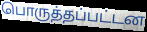
பொருத்தப்பட்டன